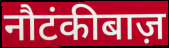
नौटंकीबाज़